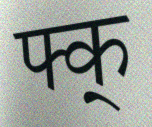
फ्क्